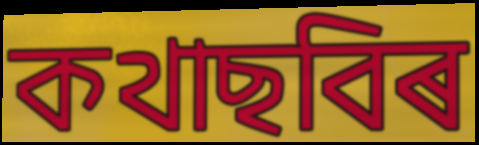
কথাছবিৰ